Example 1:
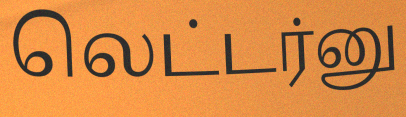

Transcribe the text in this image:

லெட்டர்னு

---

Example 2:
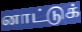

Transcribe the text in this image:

னாட்டுக்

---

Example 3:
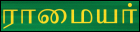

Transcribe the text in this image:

ராமையர்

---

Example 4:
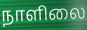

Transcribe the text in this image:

நாளிலை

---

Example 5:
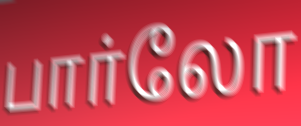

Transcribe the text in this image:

பார்லோ